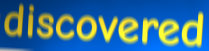
discovered